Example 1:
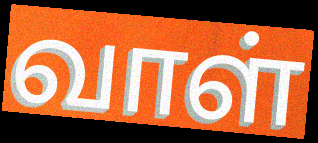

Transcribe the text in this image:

வாள்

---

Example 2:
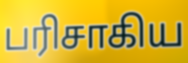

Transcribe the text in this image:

பரிசாகிய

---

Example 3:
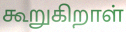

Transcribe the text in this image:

கூறுகிறாள்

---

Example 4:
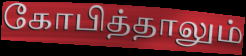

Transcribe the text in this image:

கோபித்தாலும்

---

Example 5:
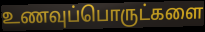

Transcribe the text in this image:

உணவுப்பொருட்களை